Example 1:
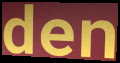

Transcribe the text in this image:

den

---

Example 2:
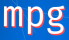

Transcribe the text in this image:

mpg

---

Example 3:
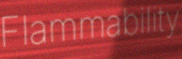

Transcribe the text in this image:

Flammability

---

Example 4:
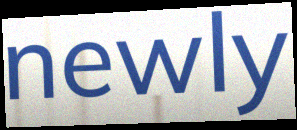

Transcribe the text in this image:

newly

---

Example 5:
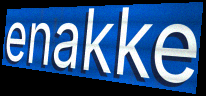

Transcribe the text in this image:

enakke